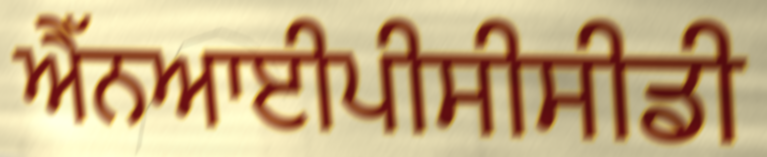
ਐੱਨਆਈਪੀਸੀਸੀਡੀ